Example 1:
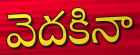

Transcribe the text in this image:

వెదకినా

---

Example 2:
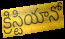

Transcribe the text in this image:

క్రిస్టియానో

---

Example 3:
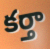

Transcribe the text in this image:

కర్తా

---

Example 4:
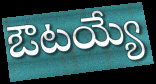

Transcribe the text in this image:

ఔటయ్యే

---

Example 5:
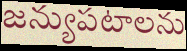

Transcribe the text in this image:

జన్యుపటాలను